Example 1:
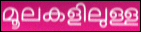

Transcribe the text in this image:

മൂലകളിലുള്ള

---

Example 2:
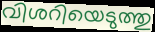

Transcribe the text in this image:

വിശറിയെടുത്തു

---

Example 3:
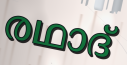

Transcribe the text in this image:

രഥാദ്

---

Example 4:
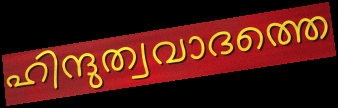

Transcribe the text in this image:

ഹിന്ദുത്വവാദത്തെ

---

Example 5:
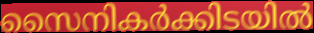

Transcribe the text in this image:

സൈനികർക്കിടയിൽ